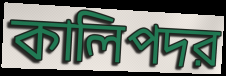
কালিপদর